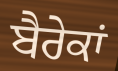
ਬੈਰੇਕਾਂ